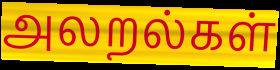
அலறல்கள்